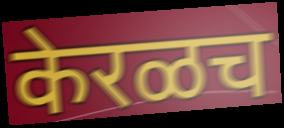
केरळच